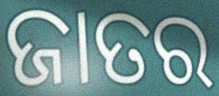
ଜାତର